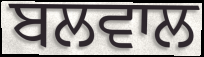
ਬਲਵਾਲ